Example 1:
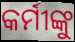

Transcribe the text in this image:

କର୍ମୀଙ୍କୁ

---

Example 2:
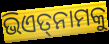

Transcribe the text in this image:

ଭିଏତ୍‌ନାମକୁ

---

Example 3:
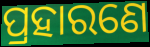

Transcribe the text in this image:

ପ୍ରହାରଣେ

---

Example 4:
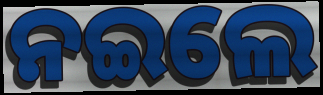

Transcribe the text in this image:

ନଇଲେ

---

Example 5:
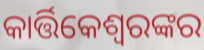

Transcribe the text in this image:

କାର୍ତ୍ତିକେଶ୍ୱରଙ୍କର